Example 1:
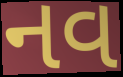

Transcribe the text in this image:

નવ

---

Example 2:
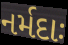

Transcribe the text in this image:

નર્મદાઃ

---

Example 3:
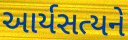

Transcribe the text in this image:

આર્યસત્યને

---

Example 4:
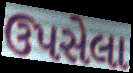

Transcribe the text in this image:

ઉપસેલા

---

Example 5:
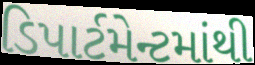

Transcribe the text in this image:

ડિપાર્ટમેન્ટમાંથી